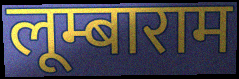
लूम्बाराम